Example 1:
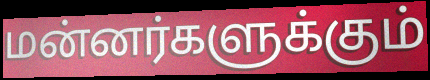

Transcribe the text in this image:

மன்னர்களுக்கும்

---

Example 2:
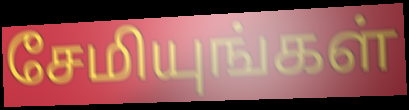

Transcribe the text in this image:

சேமியுங்கள்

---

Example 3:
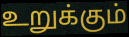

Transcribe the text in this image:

உறுக்கும்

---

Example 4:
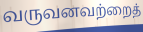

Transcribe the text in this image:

வருவனவற்றைத்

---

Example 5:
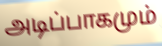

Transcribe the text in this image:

அடிப்பாகமும்